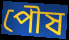
পৌষ